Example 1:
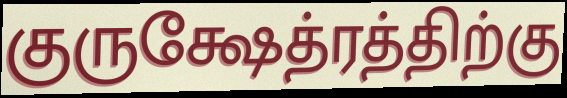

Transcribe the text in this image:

குருக்ஷேத்ரத்திற்கு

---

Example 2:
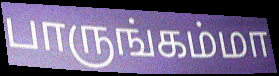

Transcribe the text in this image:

பாருங்கம்மா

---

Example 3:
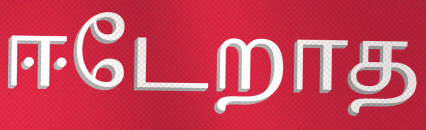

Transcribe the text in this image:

ஈடேறாத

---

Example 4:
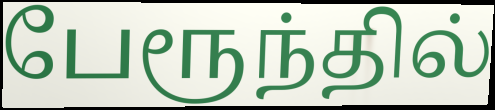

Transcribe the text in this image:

பேரூந்தில்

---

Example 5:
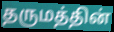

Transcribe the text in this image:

தருமத்தின்